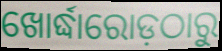
ଖୋର୍ଦ୍ଧାରୋଡ଼ଠାରୁ